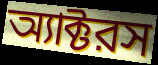
অ্যাক্টরস